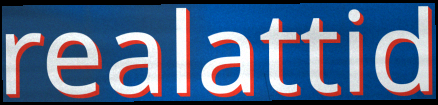
realattid